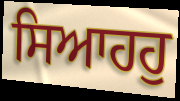
ਸਿਆਹਹੁ